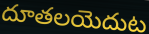
దూతలయెదుట